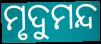
ମୃଦୁମନ୍ଦ